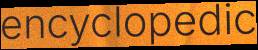
encyclopedic